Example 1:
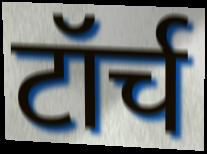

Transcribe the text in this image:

टॉर्च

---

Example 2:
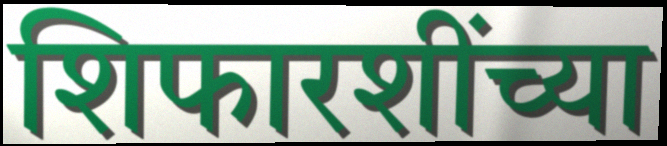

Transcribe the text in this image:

शिफारशींच्या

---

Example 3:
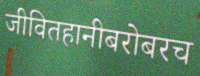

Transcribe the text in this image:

जीवितहानीबरोबरच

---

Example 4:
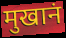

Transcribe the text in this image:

मुखानं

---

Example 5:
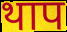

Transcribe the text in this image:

थाप